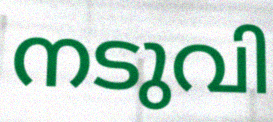
നടുവി